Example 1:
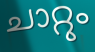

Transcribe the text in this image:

ചാറ്റും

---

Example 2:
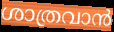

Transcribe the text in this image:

ശാത്രവാൻ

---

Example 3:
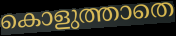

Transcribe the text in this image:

കൊളുത്താതെ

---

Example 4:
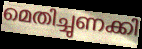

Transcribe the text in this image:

മെതിച്ചുണക്കി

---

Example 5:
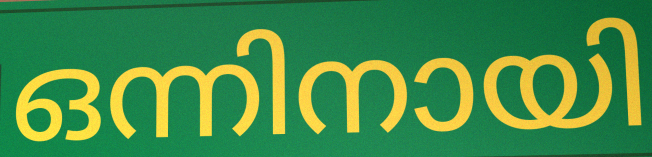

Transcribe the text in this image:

ഒന്നിനായി